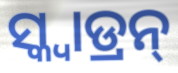
ସ୍କ୍ୱାଡ୍ରନ୍